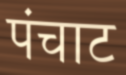
पंचाट